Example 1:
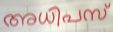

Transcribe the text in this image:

അധിപസ്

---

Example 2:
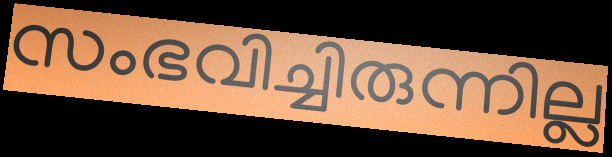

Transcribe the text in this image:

സംഭവിച്ചിരുന്നില്ല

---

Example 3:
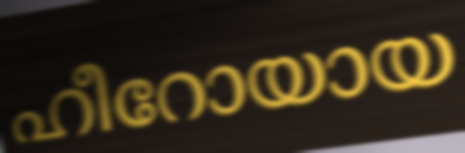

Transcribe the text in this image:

ഹീറോയായ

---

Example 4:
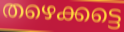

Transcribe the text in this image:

തഴെക്കട്ടെ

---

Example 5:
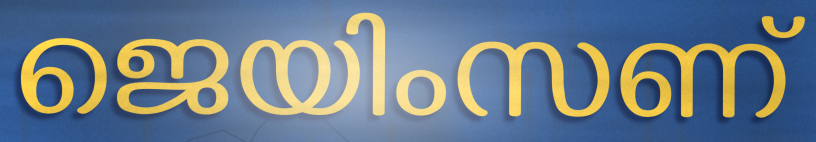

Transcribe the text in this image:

ജെയിംസണ്